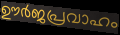
ഊർജപ്രവാഹം